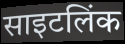
साइटलिंक